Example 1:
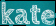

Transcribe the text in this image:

kate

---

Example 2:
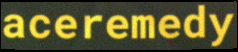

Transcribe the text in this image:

aceremedy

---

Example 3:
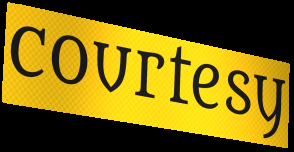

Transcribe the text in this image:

courtesy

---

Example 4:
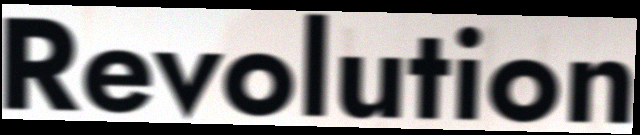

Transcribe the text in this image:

Revolution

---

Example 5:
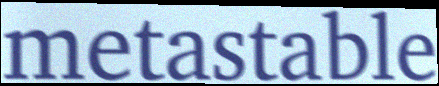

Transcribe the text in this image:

metastable